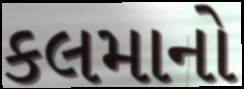
કલમાનો